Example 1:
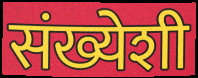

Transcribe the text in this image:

संख्येशी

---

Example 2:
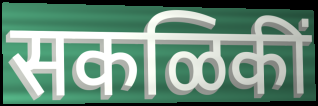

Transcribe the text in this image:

सकळिकीं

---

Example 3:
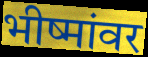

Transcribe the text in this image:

भीष्मांवर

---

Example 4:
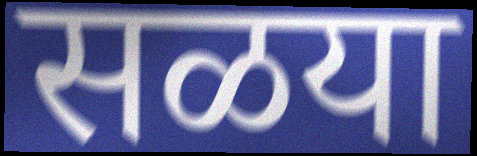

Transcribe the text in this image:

सळया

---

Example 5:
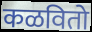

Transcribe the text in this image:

कळवितो